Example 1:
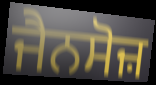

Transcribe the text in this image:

ਜੈਨਸੋਜ਼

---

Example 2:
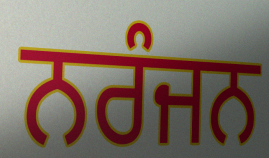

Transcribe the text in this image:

ਨਰੰਜਨ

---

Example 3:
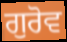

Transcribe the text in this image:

ਗੁਰੋਵ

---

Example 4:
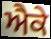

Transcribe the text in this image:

ਐਕੇ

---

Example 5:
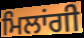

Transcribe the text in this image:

ਮਿਲਾਂਗੀ